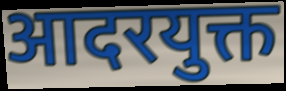
आदरयुक्त